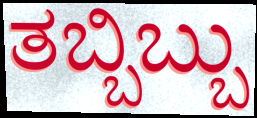
ತಬ್ಬಿಬ್ಬು